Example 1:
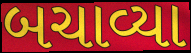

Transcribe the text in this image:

બચાવ્યા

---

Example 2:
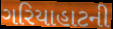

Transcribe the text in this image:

ગરિયાહાટની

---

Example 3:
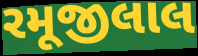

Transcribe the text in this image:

રમૂજીલાલ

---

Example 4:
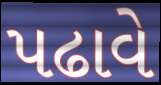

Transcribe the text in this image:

પઢાવે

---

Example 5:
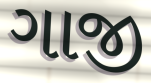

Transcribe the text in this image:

ગાજી